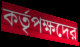
কর্তৃপক্ষদের